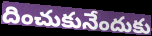
దించుకునేందుకు